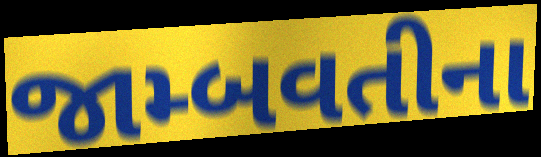
જામ્બવતીના